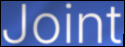
Joint